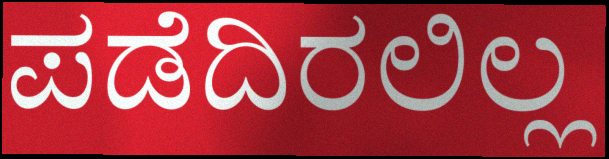
ಪಡೆದಿರಲಿಲ್ಲ